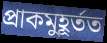
প্ৰাকমুহূৰ্তত